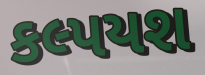
કલ્પયશ